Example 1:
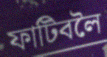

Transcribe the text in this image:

ফাটিবলৈ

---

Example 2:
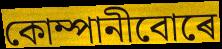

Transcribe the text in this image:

কোম্পানীবোৰে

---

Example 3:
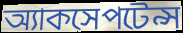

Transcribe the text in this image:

অ্যাকসেপটেন্স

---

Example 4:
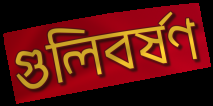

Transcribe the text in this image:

গুলিবৰ্ষণ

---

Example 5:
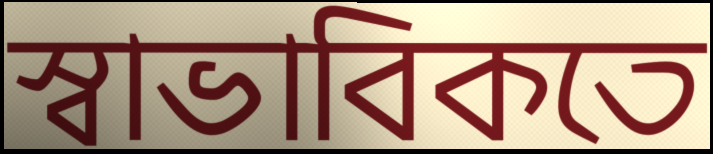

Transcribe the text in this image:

স্বাভাবিকতে